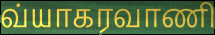
வ்யாகரவாணி